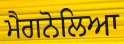
ਮੈਗਨੋਲਿਆ